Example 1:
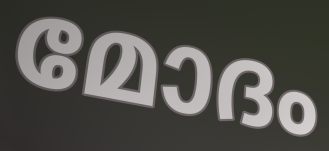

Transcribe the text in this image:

മോദം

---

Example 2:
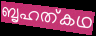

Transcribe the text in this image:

ബൃഹത്കഥ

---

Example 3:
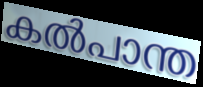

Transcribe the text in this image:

കൽപാന്ത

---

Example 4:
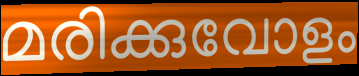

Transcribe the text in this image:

മരിക്കുവോളം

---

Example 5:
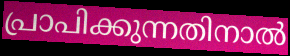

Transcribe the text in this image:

പ്രാപിക്കുന്നതിനാൽ